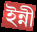
ইন্নী